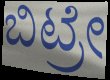
ಬಿಟ್ರೇ